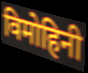
विमोहिनी